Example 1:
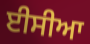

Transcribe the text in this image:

ਈਸੀਆ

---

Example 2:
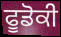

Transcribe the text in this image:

ਫੂਡੋਕੀ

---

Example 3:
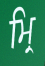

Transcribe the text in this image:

ਮ੍ਰਿ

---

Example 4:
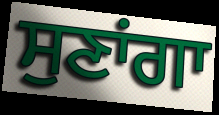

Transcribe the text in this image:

ਸੁਣਾਂਗਾ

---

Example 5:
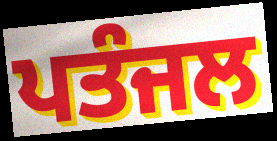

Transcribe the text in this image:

ਪਤੰਜਲ